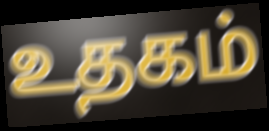
உதகம்